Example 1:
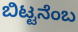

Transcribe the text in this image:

ಬಿಟ್ಟನೆಂಬ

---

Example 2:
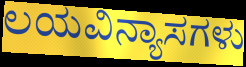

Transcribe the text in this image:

ಲಯವಿನ್ಯಾಸಗಳು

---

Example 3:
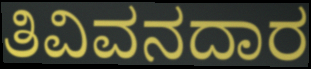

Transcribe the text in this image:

ತಿವಿವನದಾರ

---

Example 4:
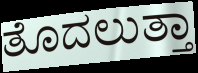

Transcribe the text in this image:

ತೊದಲುತ್ತಾ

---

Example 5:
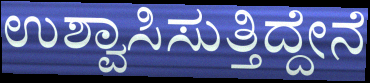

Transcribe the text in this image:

ಉಶ್ವಾಸಿಸುತ್ತಿದ್ದೇನೆ